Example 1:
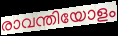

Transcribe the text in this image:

രാവന്തിയോളം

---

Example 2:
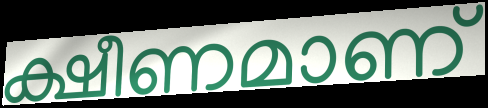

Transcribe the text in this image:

ക്ഷീണമാണ്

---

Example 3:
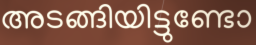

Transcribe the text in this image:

അടങ്ങിയിട്ടുണ്ടോ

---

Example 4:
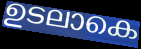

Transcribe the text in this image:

ഉടലാകെ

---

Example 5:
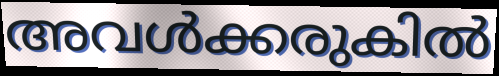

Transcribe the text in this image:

അവൾക്കരുകിൽ